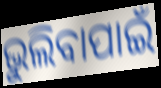
ଭୁଲିବାପାଇଁ